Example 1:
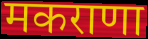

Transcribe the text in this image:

मकराणा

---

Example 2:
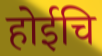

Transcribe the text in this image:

होईचि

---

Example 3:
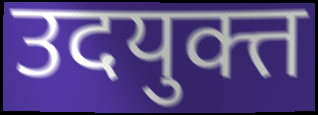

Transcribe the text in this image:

उदयुक्त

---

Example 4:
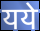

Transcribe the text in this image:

यये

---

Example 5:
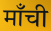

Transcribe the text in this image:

माँची